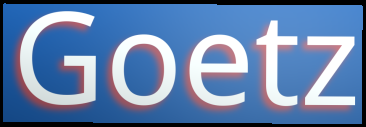
Goetz